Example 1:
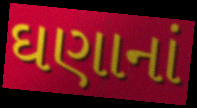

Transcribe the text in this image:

ઘણાનાં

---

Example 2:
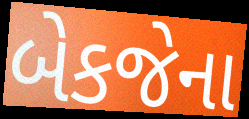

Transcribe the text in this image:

બેકજેના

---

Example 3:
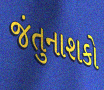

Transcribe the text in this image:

જંતુનાશકો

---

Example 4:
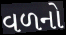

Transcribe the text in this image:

વળનો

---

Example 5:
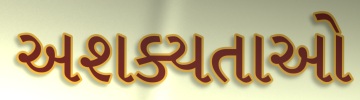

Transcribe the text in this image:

અશક્યતાઓ